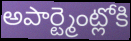
అపార్ట్మెంట్లోకి